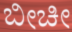
ಬೀಚೀ